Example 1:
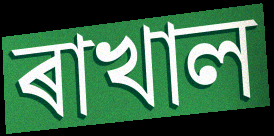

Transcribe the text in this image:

ৰাখাল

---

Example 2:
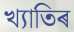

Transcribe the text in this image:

খ্যাতিৰ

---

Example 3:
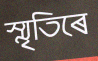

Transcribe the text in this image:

স্মৃতিৰে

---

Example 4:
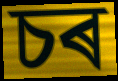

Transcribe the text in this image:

চৰ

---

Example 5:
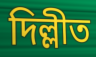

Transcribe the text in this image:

দিল্লীত